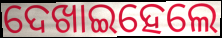
ଦେଖାଇହେଲେ